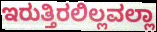
ಇರುತ್ತಿರಲಿಲ್ಲವಲ್ಲಾ